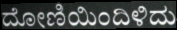
ದೋಣಿಯಿಂದಿಳಿದು